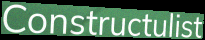
Constructulist